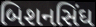
બિશનસિંઘ